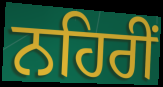
ਨਹਿਰੀਂ